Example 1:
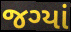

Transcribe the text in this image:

જગ્યાં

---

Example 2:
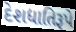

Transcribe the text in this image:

દેશદ્યાતિરૂપે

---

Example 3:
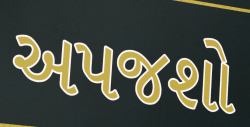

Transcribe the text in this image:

અપજશો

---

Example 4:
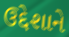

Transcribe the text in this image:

ઉદ્દેશાને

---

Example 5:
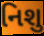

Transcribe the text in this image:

નિશુ